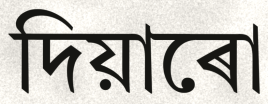
দিয়াৰো